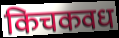
किचकवध